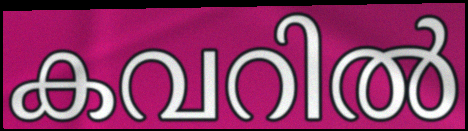
കവറിൽ